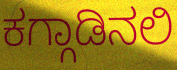
ಕಗ್ಗಾಡಿನಲಿ